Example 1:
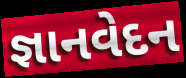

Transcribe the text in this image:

જ્ઞાનવેદન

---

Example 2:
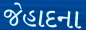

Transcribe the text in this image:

જેહાદના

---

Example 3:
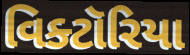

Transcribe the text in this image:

વિક્ટૉરિયા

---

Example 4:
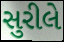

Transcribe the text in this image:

સુરીલે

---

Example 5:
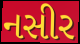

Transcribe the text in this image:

નસીર